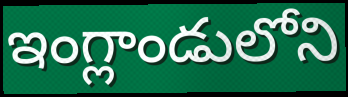
ఇంగ్లాండులోని